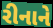
રીનાને